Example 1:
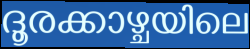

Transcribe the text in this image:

ദൂരക്കാഴ്ചയിലെ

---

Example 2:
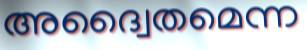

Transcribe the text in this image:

അദ്വൈതമെന്ന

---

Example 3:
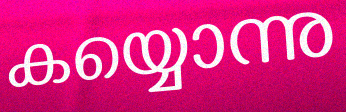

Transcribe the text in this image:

കയ്യൊന്നു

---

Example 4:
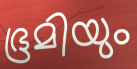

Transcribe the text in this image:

ഭൂമിയും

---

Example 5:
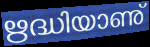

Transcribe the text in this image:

ഋദ്ധിയാണു്